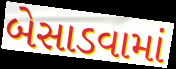
બેસાડવામાં